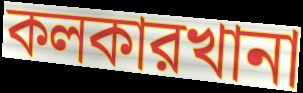
কলকারখানা